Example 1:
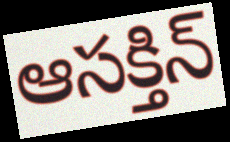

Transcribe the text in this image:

ఆసక్తిన్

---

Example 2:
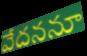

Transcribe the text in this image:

వేదననూ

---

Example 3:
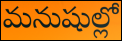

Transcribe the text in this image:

మనుషుల్లో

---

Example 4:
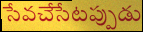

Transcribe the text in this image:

సేవచేసేటప్పుడు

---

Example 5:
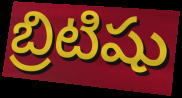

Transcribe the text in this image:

బ్రిటిషు